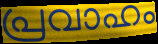
പ്രവാഹം